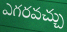
ఎగరవచ్చు